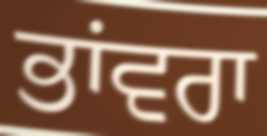
ਭਾਂਵਰਾ